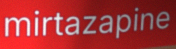
mirtazapine